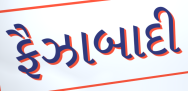
ફૈઝાબાદી